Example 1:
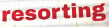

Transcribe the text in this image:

resorting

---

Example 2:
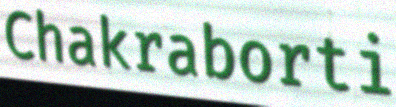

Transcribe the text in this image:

Chakraborti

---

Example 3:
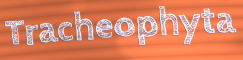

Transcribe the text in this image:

Tracheophyta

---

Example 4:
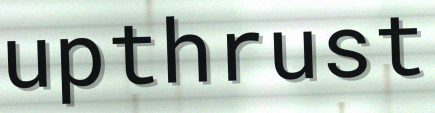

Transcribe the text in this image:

upthrust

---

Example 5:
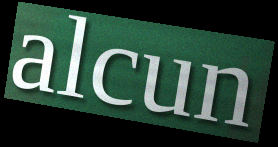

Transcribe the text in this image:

alcun